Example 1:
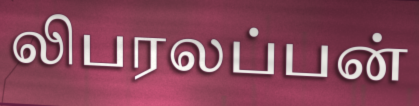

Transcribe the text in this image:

லிபரலப்பன்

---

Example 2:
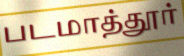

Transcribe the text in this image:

படமாத்தூர்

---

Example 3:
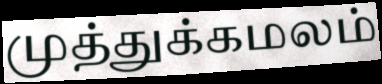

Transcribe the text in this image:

முத்துக்கமலம்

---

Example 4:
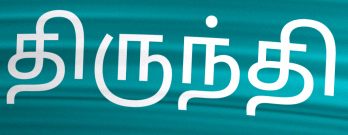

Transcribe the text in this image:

திருந்தி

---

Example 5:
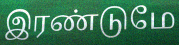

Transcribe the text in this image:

இரண்டுமே